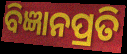
ବିଜ୍ଞାନପ୍ରତି